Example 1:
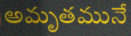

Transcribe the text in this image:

అమృతమునే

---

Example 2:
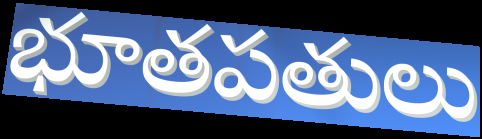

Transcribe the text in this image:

భూతపతులు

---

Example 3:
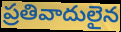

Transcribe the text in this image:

ప్రతివాదులైన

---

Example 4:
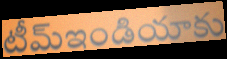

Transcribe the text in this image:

టీమ్ఇండియాకు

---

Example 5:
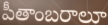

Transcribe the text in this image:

పీతాంబరాలూ